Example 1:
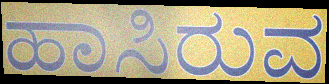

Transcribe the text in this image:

ಹಾಸಿರುವ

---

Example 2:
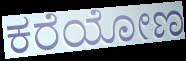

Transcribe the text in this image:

ಕರೆಯೋಣ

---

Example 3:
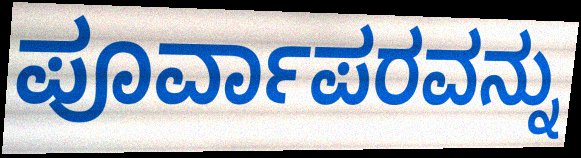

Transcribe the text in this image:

ಪೂರ್ವಾಪರವನ್ನು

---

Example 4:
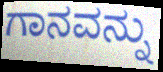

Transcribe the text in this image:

ಗಾನವನ್ನು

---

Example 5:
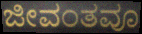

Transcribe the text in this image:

ಜೀವಂತವೂ